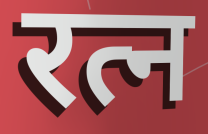
रत्न